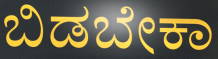
ಬಿಡಬೇಕಾ